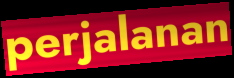
perjalanan